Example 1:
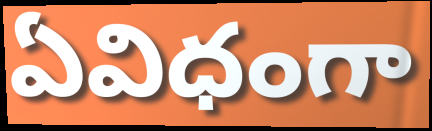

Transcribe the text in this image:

ఏవిధంగా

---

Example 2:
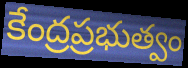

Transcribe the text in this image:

కేంద్రప్రభుత్వం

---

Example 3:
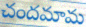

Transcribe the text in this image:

చందమామ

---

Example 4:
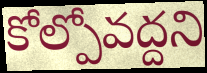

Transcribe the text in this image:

కోల్పోవద్దని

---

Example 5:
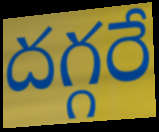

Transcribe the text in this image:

దగ్గరే